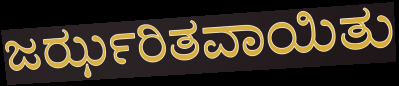
ಜರ್ಝರಿತವಾಯಿತು